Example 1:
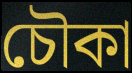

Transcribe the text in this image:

চৌকা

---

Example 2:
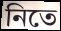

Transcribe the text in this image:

নিতে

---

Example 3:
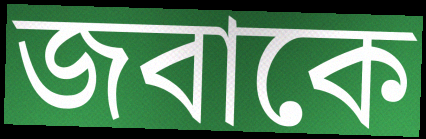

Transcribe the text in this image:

জবাকে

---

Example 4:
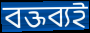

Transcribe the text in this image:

বক্তব্যই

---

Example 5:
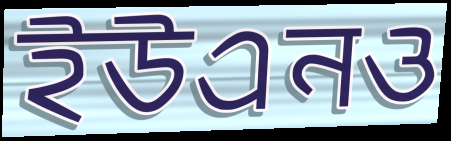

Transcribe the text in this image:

ইউএনও